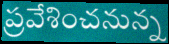
ప్రవేశించనున్న